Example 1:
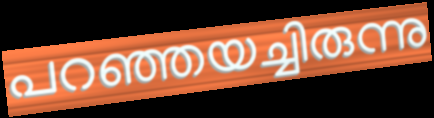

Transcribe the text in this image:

പറഞ്ഞയച്ചിരുന്നു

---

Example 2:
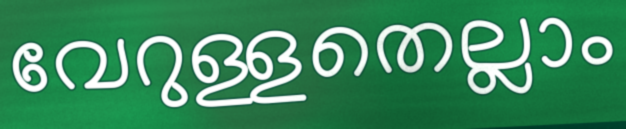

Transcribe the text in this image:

വേറുള്ളതെല്ലാം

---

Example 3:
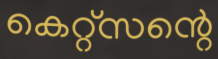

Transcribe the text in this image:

കെറ്റ്സന്റെ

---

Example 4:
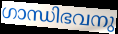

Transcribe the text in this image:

ഗാന്ധിഭവനു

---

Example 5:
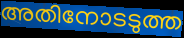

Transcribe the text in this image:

അതിനോടടുത്ത